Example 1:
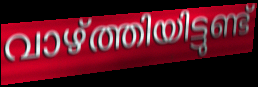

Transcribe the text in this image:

വാഴ്ത്തിയിട്ടുണ്ട്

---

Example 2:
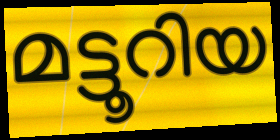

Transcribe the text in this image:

മട്ടൂറിയ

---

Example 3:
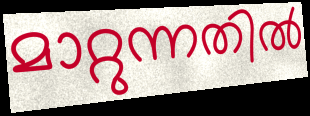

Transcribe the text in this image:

മാറ്റുന്നതിൽ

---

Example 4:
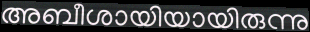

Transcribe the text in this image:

അബീശായിയായിരുന്നു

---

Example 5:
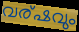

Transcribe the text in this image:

വര്ഷവും